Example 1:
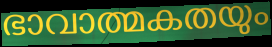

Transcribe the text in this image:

ഭാവാത്മകതയും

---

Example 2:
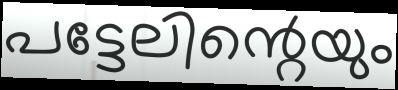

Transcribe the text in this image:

പട്ടേലിന്റെയും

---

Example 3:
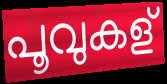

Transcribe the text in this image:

പൂവുകള്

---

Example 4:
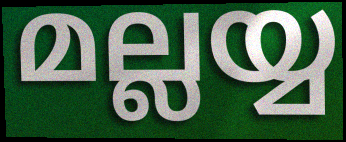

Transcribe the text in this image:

മല്ലയ്യ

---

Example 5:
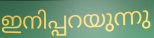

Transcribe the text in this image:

ഇനിപ്പറയുന്നു